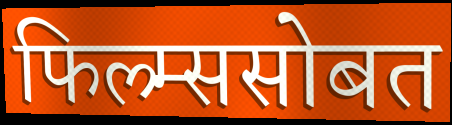
फिल्म्ससोबत